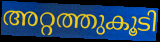
അറ്റത്തുകൂടി